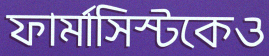
ফার্মাসিস্টকেও